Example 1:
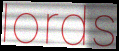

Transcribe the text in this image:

lords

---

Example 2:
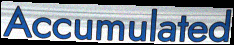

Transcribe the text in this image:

Accumulated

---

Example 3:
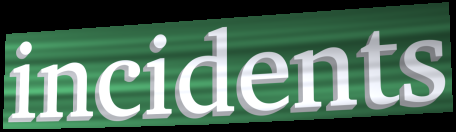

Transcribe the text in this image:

incidents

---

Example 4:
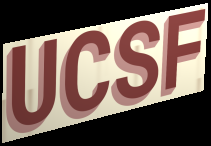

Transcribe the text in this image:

UCSF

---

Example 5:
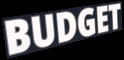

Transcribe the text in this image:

BUDGET